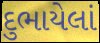
દુભાયેલાં